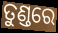
ତୁଣ୍ଡରେ